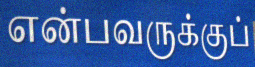
என்பவருக்குப்